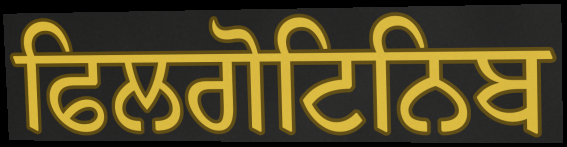
ਫਿਲਗੋਟਿਨਿਬ